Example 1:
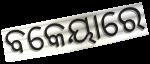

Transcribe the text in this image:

ବକେୟାରେ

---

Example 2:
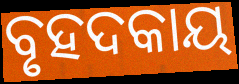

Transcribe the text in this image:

ବୃହଦକାୟ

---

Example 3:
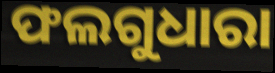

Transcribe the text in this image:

ଫଲଗୁଧାରା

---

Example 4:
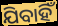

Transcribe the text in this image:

ଯିବାହିଁ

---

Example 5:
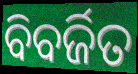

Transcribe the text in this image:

ବିବର୍ଜିତ